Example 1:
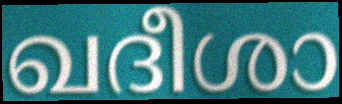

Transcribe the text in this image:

ഖദീശാ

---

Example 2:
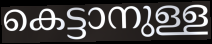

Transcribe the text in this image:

കെട്ടാനുള്ള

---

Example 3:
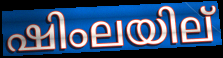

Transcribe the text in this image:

ഷിംലയില്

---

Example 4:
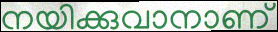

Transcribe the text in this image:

നയിക്കുവാനാണ്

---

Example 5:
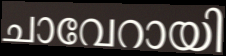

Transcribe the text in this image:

ചാവേറായി